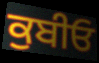
ਕੁਬੀਓ